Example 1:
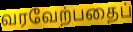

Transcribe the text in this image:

வரவேற்பதைப்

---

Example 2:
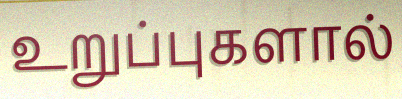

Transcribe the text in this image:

உறுப்புகளால்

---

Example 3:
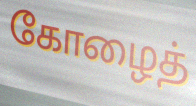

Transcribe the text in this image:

கோழைத்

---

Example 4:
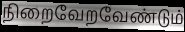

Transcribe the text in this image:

நிறைவேறவேண்டும்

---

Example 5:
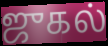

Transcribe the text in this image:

ஜுகல்